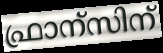
ഫ്രാന്സിന്